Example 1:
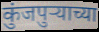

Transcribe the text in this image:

कुंजपुऱ्याच्या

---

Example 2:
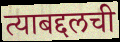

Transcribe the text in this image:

त्याबद्दलची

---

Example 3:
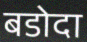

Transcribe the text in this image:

बडोदा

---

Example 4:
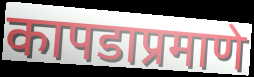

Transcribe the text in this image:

कापडाप्रमाणे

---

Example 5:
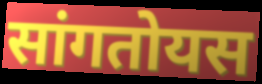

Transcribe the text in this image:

सांगतोयस